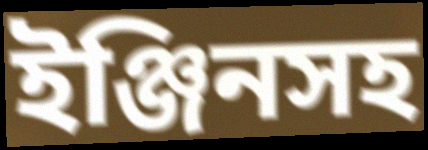
ইঞ্জিনসহ